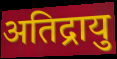
अतिद्रायु